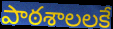
పాఠశాలలకే